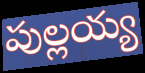
పుల్లయ్య